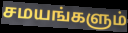
சமயங்களும்